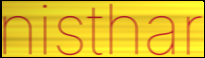
nisthar